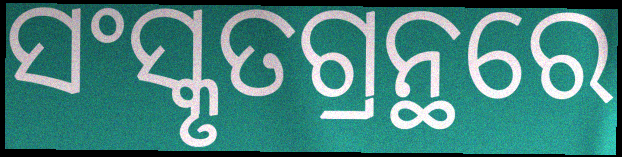
ସଂସ୍କୃତଗ୍ରନ୍ଥରେ